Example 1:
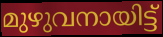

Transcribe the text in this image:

മുഴുവനായിട്ട്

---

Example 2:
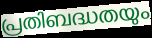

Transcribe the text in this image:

പ്രതിബദ്ധതയും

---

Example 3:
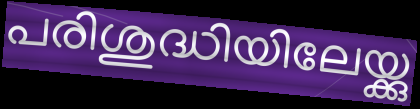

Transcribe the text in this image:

പരിശുദ്ധിയിലേയ്ക്കു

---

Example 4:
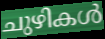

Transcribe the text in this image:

ചുഴികൾ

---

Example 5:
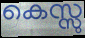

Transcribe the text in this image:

കെസ്സു